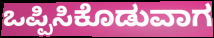
ಒಪ್ಪಿಸಿಕೊಡುವಾಗ